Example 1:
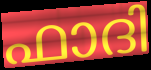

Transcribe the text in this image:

ഫാദി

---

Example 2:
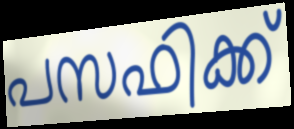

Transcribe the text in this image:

പസഫിക്ക്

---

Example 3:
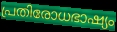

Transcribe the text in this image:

പ്രതിരോധഭാഷ്യം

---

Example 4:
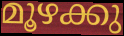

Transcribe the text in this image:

മൂഴക്കു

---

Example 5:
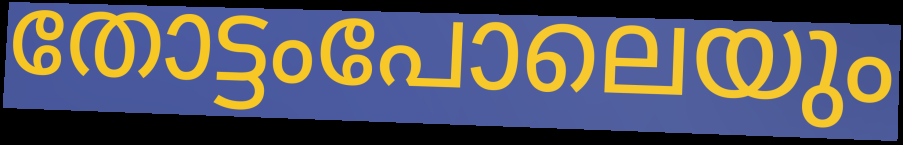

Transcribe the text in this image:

തോട്ടംപോലെയും